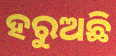
ହରୁଅଛି